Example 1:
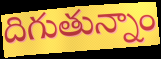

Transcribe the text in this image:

దిగుతున్నాం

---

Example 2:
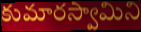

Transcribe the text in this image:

కుమారస్వామిని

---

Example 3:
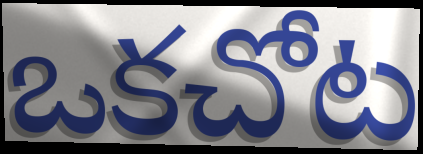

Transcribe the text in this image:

ఒకచోట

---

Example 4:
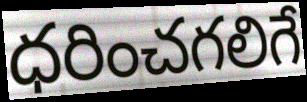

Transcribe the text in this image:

ధరించగలిగే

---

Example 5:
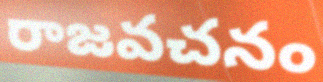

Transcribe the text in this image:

రాజవచనం